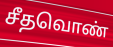
சீதவொண்